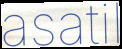
asatil